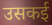
उसकई